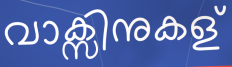
വാക്സിനുകള്